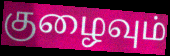
குழைவும்